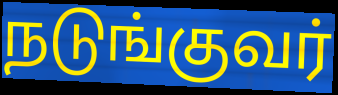
நடுங்குவர்